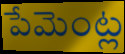
పేమెంట్ల